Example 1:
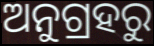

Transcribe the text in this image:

ଅନୁଗ୍ରହରୁ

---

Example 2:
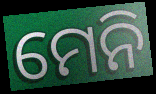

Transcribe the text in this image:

ମେନି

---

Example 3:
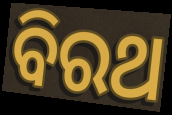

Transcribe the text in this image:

ବିରଥ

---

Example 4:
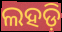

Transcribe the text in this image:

ଲହଡ଼ି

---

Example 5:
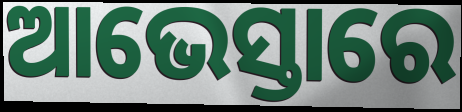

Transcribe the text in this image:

ଆଭେସ୍ତାରେ